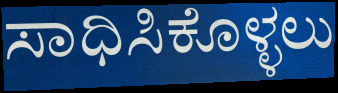
ಸಾಧಿಸಿಕೊಳ್ಳಲು